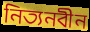
নিত্যনবীন